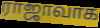
ராஜாவாக